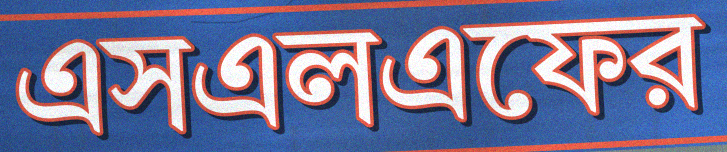
এসএলএফের